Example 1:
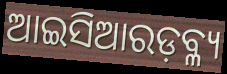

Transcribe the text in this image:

ଆଇସିଆରଡ଼ବ୍ଳ୍ୟ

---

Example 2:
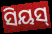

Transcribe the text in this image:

ସିୟସ୍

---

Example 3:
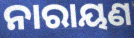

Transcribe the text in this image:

ନାରାୟଣ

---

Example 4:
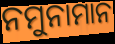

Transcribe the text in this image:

ନମୁନାମାନ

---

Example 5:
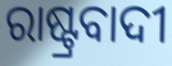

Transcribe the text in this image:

ରାଷ୍ଟ୍ରବାଦୀ